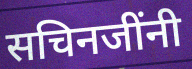
सचिनजींनी